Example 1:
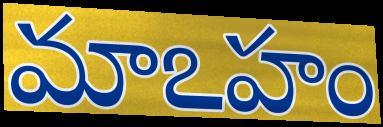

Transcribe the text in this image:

మాఽహం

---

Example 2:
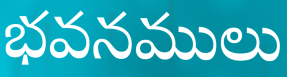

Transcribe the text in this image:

భవనములు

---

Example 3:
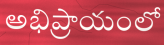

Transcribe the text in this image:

అభిప్రాయంలో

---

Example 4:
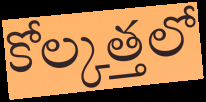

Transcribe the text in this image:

కోల్కత్తలో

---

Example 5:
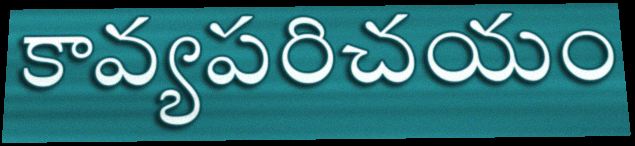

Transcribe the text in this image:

కావ్యపరిచయం